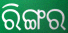
ରିଙ୍ଗର